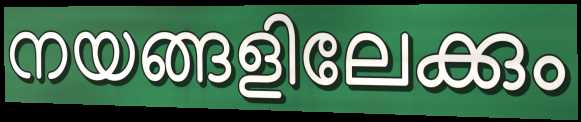
നയങ്ങളിലേക്കും